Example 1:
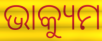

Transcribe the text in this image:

ଭାକ୍ୟୁମ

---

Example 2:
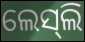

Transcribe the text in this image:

ଲେସ୍‍ଲି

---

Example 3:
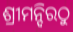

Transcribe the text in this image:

ଶ୍ରୀମନ୍ଦିରଠୁ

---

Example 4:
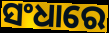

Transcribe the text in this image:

ସଂଧାରେ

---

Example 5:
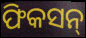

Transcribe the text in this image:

ଫିକସନ୍